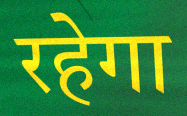
रहेगा